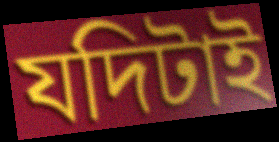
যদিটাই